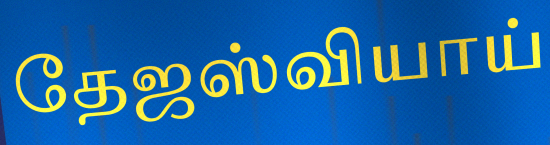
தேஜஸ்வியாய்